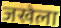
जखेला